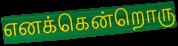
எனக்கென்றொரு